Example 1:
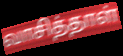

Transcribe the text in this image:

வாசித்தாள்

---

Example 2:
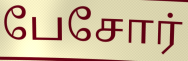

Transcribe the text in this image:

பேசோர்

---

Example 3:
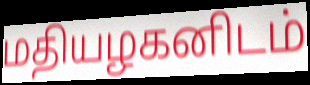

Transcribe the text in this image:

மதியழகனிடம்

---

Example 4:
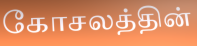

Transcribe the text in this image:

கோசலத்தின்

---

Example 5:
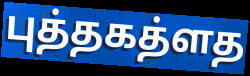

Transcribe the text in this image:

புத்தகத்ளத